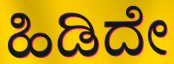
ಹಿಡಿದೇ